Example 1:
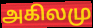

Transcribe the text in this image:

அகிலமு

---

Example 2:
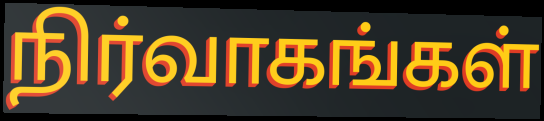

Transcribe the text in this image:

நிர்வாகங்கள்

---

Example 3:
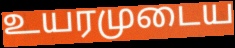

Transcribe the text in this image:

உயரமுடைய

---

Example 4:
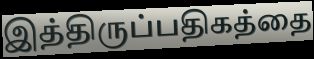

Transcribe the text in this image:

இத்திருப்பதிகத்தை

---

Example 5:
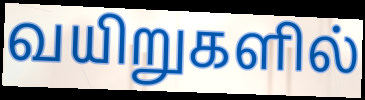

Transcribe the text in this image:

வயிறுகளில்